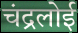
चंद्रलोई